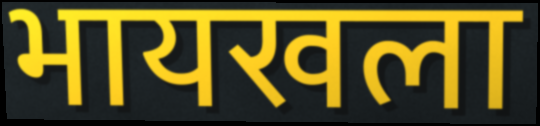
भायखला